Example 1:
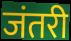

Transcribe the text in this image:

जंतरी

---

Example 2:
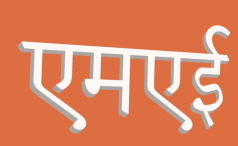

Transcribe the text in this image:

एमएई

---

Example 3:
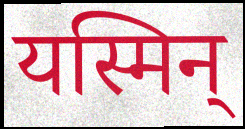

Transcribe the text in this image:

यस्मिन्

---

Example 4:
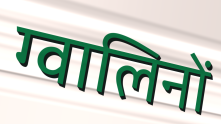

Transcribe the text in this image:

ग्वालिनों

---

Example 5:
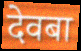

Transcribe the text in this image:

देवबा